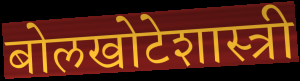
बोलखोटेशास्त्री